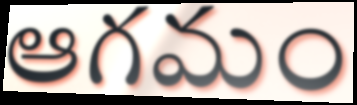
ఆగమం